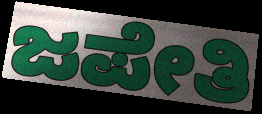
ಜಪೇತಿ